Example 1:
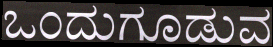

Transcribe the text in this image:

ಒಂದುಗೂಡುವ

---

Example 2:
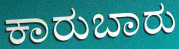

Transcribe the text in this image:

ಕಾರುಬಾರು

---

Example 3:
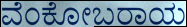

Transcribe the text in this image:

ವೆಂಕೋಬರಾಯ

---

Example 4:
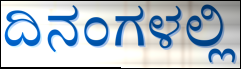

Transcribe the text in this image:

ದಿನಂಗಳಲ್ಲಿ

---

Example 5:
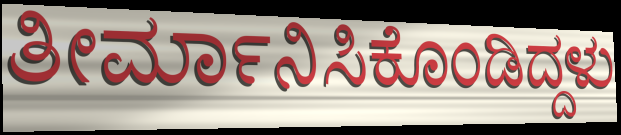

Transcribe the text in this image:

ತೀರ್ಮಾನಿಸಿಕೊಂಡಿದ್ದಳು